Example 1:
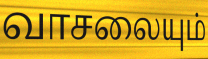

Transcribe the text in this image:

வாசலையும்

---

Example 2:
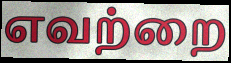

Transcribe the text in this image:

எவற்றை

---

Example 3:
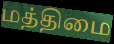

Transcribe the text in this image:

மத்திமை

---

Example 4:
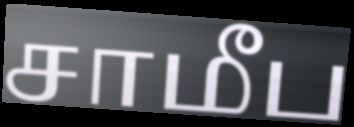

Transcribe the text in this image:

சாமீப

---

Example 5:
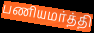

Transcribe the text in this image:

பணியமர்த்தி